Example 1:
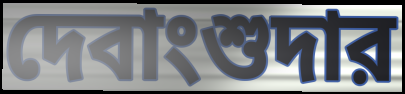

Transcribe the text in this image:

দেবাংশুদার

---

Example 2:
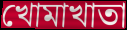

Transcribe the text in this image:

খোমাখাতা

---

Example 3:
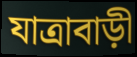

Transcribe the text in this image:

যাত্রাবাড়ী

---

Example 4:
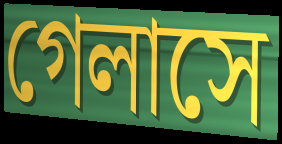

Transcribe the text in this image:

গেলাসে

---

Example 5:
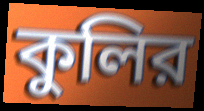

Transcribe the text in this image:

কুলির